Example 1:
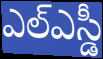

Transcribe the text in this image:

ఎల్ఎస్డీ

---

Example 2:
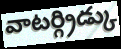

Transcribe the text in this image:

వాటర్గ్రిడ్కు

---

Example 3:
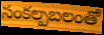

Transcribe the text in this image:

సంకల్పబలంతో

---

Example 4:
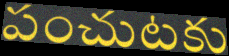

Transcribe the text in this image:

పంచుటకు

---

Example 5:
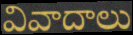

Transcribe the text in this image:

వివాదాలు